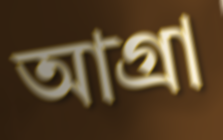
আগ্রা